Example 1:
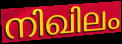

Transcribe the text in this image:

നിഖിലം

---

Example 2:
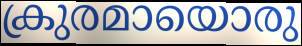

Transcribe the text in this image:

ക്രുരമായൊരു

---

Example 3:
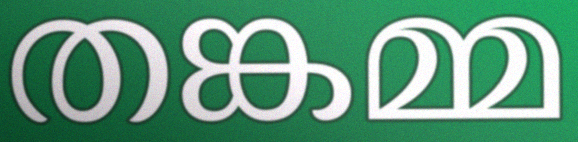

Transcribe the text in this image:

തങ്കമ്മ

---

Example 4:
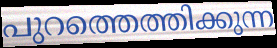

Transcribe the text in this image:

പുറത്തെത്തിക്കുന്ന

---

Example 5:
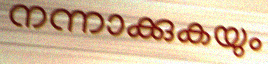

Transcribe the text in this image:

നന്നാക്കുകയും